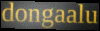
dongaalu